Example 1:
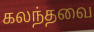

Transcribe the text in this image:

கலந்தவை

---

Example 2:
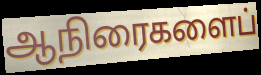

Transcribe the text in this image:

ஆநிரைகளைப்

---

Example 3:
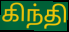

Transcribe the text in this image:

கிந்தி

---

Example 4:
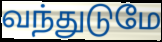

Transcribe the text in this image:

வந்துடுமே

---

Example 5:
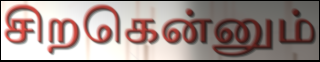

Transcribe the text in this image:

சிறகென்னும்